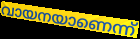
വായനയാണെന്ന്